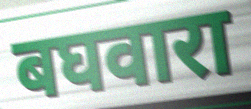
बघवारा